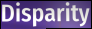
Disparity